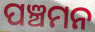
ପଞ୍ଚମନ